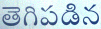
తెగిపడిన